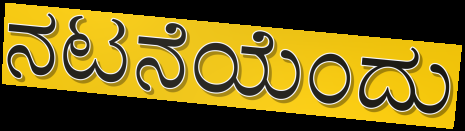
ನಟನೆಯೆಂದು